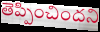
తెప్పించిందని